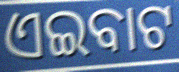
ଏଇବାଟ